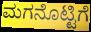
ಮಗನೊಟ್ಟಿಗೆ